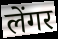
लेंगर